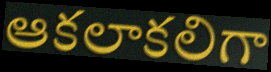
ఆకలాకలిగా